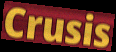
Crusis